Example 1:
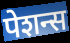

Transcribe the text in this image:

पेशन्स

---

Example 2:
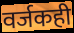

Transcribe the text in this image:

वर्जकही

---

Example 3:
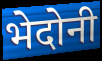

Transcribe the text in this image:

भेदोनी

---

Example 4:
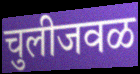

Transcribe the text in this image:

चुलीजवळ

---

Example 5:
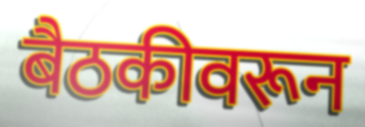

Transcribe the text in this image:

बैठकीवरून